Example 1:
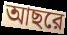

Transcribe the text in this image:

আছরে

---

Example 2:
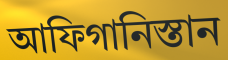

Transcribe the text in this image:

আফিগানিস্তান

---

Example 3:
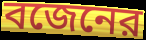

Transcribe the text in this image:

বজেনের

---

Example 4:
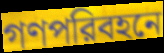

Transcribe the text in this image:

গণপরিবহনে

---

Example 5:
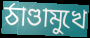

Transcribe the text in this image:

ঠাণ্ডামুখে